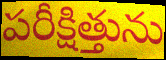
పరీక్షిత్తును